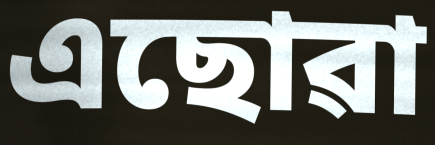
এছোৱা